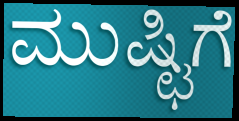
ಮುಷ್ಟಿಗೆ